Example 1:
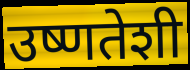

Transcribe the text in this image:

उष्णतेशी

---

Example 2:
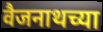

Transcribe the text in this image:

वैजनाथच्या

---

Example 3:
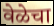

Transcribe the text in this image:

वेळेचा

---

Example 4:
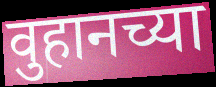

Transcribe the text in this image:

वुहानच्या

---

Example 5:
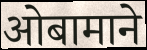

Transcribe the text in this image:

ओबामाने